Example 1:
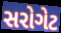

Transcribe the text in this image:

સરોગેટ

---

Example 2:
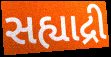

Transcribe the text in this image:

સહ્યાદ્રી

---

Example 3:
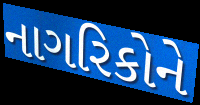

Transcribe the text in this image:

નાગરિકોને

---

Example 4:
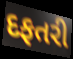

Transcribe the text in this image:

દફતરી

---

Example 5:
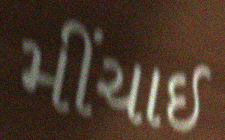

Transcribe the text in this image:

મીંચાઈ